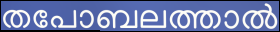
തപോബലത്താൽ